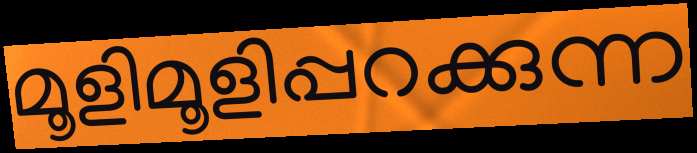
മൂളിമൂളിപ്പറക്കുന്ന